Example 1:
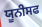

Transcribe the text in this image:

ਯੂਨੀਸਫ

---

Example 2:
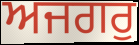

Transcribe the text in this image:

ਅਜਗਰੁ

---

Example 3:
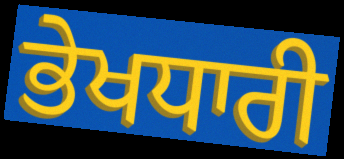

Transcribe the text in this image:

ਭੇਖਧਾਰੀ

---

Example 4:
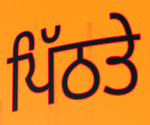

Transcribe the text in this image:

ਪਿੱਠਤੇ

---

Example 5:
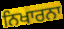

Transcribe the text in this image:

ਨਿਖਾਰਨਾ